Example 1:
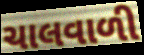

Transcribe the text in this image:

ચાલવાળી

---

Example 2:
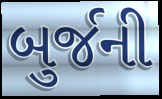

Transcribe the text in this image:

બુર્જની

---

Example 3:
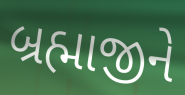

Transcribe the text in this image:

બ્રહ્માજીને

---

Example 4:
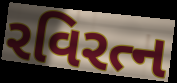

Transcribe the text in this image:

રવિરત્ન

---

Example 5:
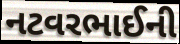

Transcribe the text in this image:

નટવરભાઈની